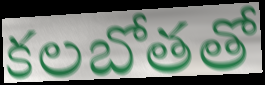
కలబోతతో